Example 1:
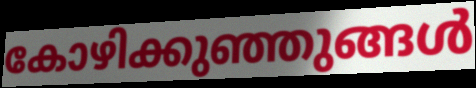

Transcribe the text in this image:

കോഴിക്കുഞ്ഞുങ്ങൾ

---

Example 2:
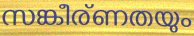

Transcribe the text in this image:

സങ്കീര്ണതയും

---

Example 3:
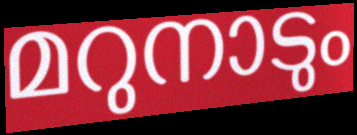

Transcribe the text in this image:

മറുനാടും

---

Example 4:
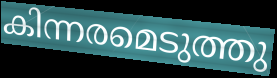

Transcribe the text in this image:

കിന്നരമെടുത്തു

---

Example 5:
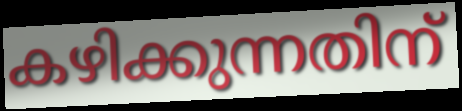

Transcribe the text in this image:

കഴിക്കുന്നതിന്